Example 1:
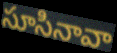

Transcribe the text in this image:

సూసినావా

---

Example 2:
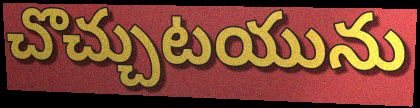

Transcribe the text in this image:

చొచ్చుటయును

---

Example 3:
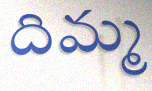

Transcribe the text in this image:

దిమ్మ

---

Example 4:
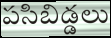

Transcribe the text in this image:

పసిబిడ్డలు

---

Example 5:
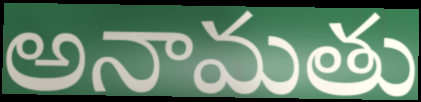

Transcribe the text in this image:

అనామతు